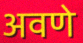
अवणे